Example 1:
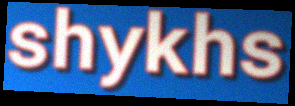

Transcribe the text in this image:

shykhs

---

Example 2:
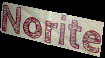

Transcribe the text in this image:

Norite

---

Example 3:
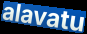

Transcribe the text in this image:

alavatu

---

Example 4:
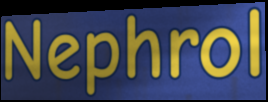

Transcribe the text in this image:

Nephrol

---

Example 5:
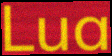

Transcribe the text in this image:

Lua